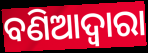
ବଣିଆଦ୍ୱାରା